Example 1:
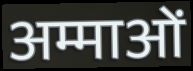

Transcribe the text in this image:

अम्माओं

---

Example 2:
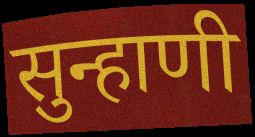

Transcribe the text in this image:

सुन्हाणी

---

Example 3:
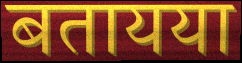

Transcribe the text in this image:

बतायया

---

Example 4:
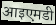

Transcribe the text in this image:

आइएमडी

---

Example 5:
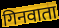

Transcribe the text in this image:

गिनवाता